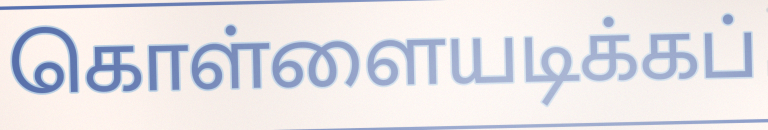
கொள்ளையடிக்கப்